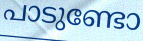
പാടുണ്ടോ